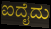
ಐದೈದು